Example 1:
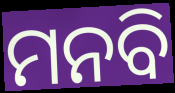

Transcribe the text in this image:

ମନବି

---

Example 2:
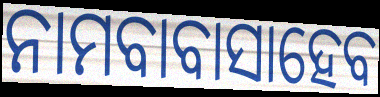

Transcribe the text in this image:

ନାମବାବାସାହେବ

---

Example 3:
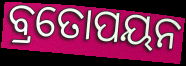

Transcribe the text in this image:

ବ୍ରତୋପୟନ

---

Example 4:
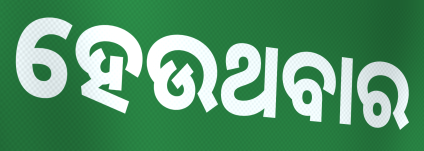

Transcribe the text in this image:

ହେଉଥବାର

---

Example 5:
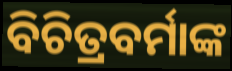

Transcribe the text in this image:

ବିଚିତ୍ରବର୍ମାଙ୍କ